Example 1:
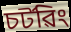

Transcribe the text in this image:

চৰ্টৱিং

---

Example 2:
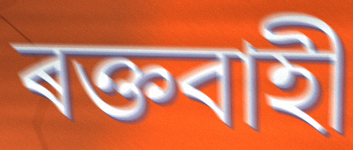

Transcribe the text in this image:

ৰক্তবাহী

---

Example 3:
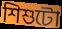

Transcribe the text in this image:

শিশুটো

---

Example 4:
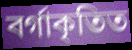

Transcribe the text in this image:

বৰ্গাকৃতিত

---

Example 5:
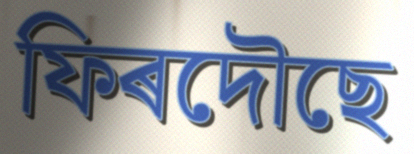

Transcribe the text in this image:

ফিৰদৌছে